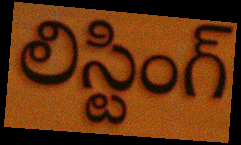
లిస్టింగ్